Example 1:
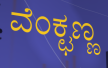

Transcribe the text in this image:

ವೆಂಕ್ಟಣ್ಣ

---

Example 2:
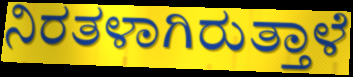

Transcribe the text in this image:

ನಿರತಳಾಗಿರುತ್ತಾಳೆ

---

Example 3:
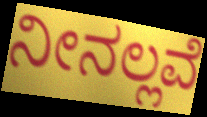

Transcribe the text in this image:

ನೀನಲ್ಲವೆ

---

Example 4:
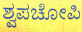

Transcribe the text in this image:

ಶ್ವಪಚೋಪಿ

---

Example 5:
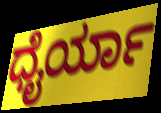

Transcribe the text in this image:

ಧೈರ್ಯಾ